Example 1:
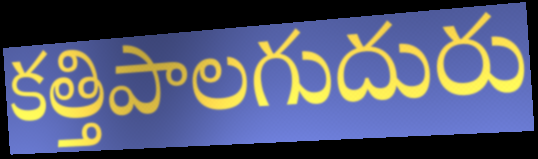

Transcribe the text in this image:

కత్తిపాలగుదురు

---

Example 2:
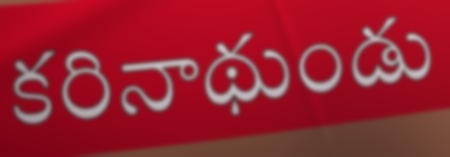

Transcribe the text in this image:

కరినాథుండు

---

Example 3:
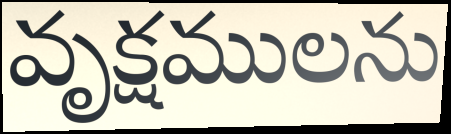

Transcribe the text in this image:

వృక్షములను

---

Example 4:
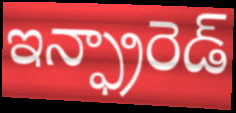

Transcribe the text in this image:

ఇన్ఫ్రారెడ్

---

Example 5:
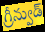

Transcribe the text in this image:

గ్రీన్వుడ్